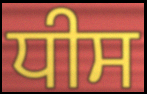
ਧੀਸ